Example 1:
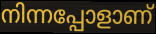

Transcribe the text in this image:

നിന്നപ്പോളാണ്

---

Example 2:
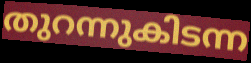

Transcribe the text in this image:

തുറന്നുകിടന്ന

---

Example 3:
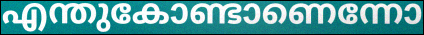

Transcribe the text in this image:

എന്തുകോണ്ടാണെന്നോ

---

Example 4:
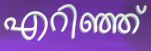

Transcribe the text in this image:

എറിഞ്ഞ്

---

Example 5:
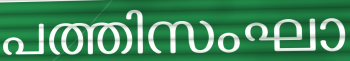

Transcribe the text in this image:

പത്തിസംഘാ